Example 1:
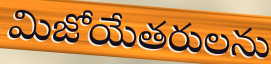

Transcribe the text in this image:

మిజోయేతరులను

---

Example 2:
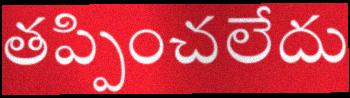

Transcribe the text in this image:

తప్పించలేదు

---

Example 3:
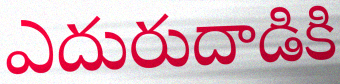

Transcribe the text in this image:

ఎదురుదాడికి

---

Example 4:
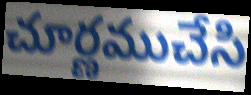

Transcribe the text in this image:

చూర్ణముచేసి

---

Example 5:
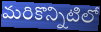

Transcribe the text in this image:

మరికొన్నిటిలో